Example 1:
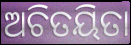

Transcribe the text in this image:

ଅଚିତୟିତା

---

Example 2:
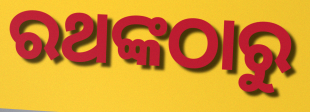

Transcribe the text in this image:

ରଥଙ୍କଠାରୁ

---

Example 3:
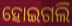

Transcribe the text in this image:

ହୋଇଗଲି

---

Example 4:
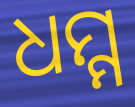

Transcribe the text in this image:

ଧମ୍ମ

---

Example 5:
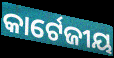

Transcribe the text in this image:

କାର୍ଟେଜୀୟ